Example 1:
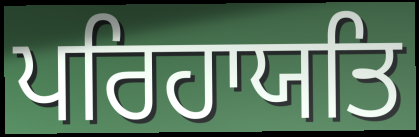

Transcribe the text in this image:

ਪਰਿਹਾਯਤਿ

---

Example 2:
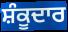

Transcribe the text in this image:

ਸ਼ੰਕੂਦਾਰ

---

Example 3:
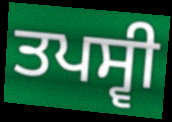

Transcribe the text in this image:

ਤਪਸ੍ਵੀ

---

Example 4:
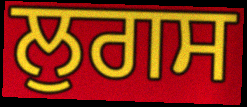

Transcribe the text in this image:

ਲੁਗਸ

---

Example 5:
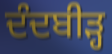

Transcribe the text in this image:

ਦੰਦਬੀੜ੍ਹ